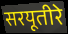
सरयूतीरे